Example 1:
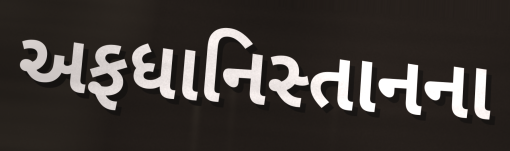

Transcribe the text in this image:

અફધાનિસ્તાનના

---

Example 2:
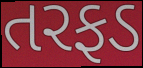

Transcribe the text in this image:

તરફડ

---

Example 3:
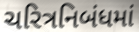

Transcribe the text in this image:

ચરિત્રનિબંધમાં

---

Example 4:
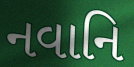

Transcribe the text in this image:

નવાનિ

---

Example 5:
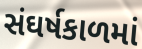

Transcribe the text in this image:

સંઘર્ષકાળમાં